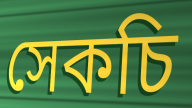
সেকচি